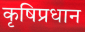
कृषिप्रधान